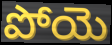
పోయె